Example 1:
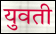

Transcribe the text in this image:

युवती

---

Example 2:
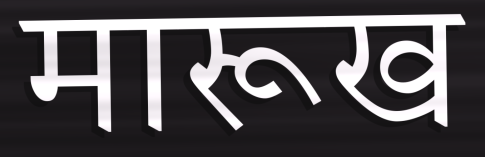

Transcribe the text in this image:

मारूख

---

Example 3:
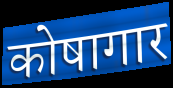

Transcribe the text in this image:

कोषागार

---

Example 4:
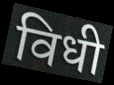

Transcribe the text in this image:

विधी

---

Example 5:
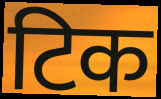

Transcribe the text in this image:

टिक